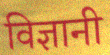
विज्ञानी